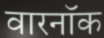
वारनॉक